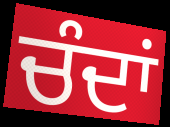
ਚੰਦਾਂ